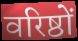
वरिष्ठों